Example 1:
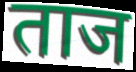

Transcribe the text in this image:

ताज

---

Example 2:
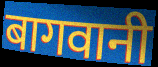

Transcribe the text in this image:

बागवानी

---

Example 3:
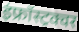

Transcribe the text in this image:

इंफ्रॉस्ट्रक्चर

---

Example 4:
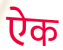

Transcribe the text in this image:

ऐक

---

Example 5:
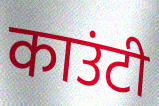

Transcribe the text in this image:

काउंटी